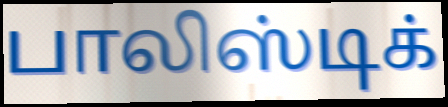
பாலிஸ்டிக்